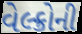
વેલ્ક્રોની